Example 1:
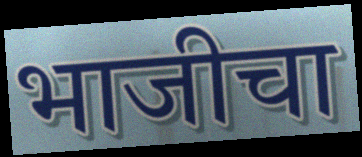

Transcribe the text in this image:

भाजीचा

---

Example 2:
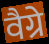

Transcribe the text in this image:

वैग्रे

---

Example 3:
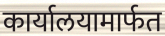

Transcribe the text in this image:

कार्यालयामार्फत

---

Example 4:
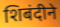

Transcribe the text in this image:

शिबंदीने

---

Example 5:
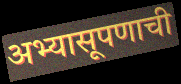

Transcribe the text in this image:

अभ्यासूपणाची